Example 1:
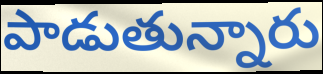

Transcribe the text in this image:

పాడుతున్నారు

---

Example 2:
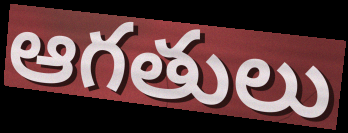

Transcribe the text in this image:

ఆగతులు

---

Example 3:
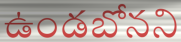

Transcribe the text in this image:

ఉండబోనని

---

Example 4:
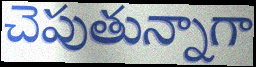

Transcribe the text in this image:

చెపుతున్నాగా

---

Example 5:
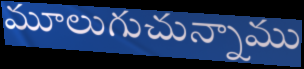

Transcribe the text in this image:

మూలుగుచున్నాము